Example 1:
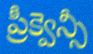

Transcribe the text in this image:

ప్రీక్వెన్సీ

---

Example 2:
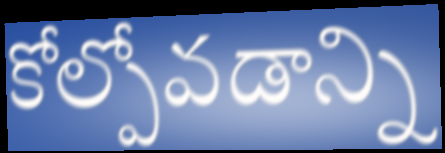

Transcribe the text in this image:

కోల్పోవడాన్ని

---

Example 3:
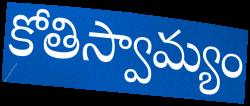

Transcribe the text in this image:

కోతిస్వామ్యం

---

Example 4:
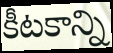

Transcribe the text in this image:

కీటకాన్ని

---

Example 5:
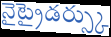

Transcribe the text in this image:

నైట్రైడర్స్కు